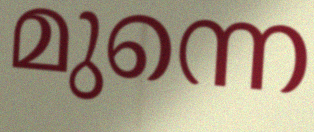
മുന്നെ